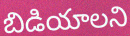
బిడియాలని